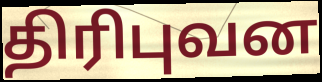
திரிபுவன